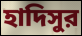
হাদিসুর